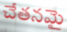
చేతనమై